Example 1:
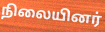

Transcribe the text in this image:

நிலையினர்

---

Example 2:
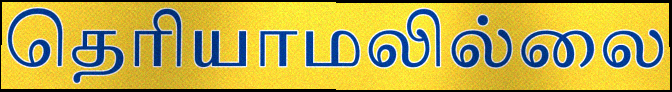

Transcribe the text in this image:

தெரியாமலில்லை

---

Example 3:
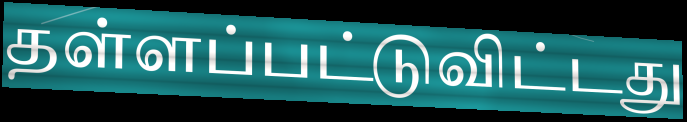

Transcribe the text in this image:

தள்ளப்பட்டுவிட்டது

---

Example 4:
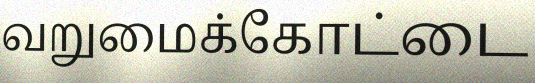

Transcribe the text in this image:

வறுமைக்கோட்டை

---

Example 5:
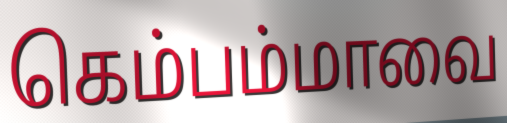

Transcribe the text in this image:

கெம்பம்மாவை